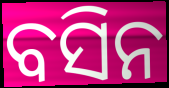
ବସିନ